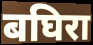
बघिरा